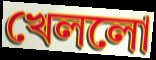
খেললো